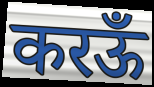
करऊँ